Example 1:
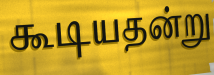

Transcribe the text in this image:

கூடியதன்று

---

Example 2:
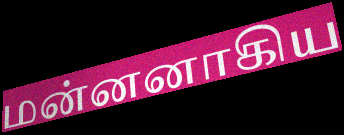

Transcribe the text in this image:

மன்னனாகிய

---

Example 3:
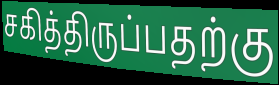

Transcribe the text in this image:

சகித்திருப்பதற்கு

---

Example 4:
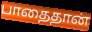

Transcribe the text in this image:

பாதைதான்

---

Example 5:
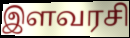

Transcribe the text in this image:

இளவரசி